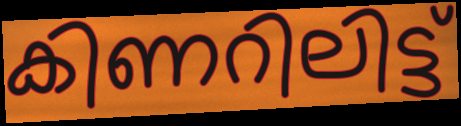
കിണറിലിട്ട്